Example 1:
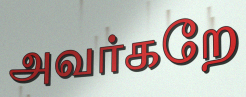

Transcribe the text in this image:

அவர்கறே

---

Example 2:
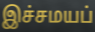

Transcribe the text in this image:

இச்சமயப்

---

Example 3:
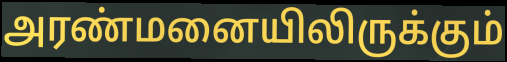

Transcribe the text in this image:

அரண்மனையிலிருக்கும்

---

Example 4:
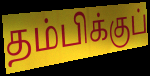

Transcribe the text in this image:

தம்பிக்குப்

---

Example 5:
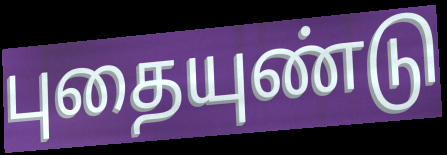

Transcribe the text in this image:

புதையுண்டு